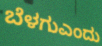
ಬೆಳಗುಎಂದು